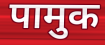
पामुक